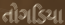
તોગડિયા